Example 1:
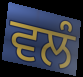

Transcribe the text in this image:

ਵਲੰ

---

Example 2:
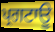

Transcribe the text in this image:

ਪ੍ਰਗਟਾਊ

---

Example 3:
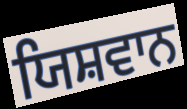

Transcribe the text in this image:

ਯਿਸ਼ਵਾਨ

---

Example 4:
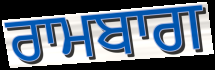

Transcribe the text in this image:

ਰਾਮਬਾਗ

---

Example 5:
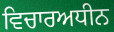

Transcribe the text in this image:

ਵਿਚਾਰਅਧੀਨ